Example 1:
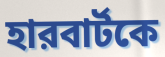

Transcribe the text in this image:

হারবার্টকে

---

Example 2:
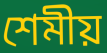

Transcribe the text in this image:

শেমীয়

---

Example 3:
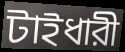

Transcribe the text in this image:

টাইধারী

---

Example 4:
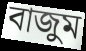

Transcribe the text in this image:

বাজুম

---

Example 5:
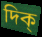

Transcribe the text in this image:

দিক্